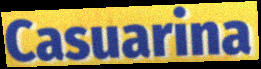
Casuarina